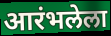
आरंभलेला